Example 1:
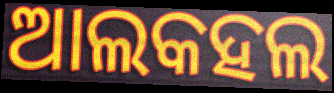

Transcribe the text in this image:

ଆଲକହଲ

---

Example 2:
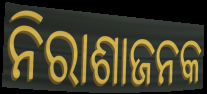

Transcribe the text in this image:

ନିରାଶାଜନକ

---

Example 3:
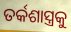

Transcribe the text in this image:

ତର୍କଶାସ୍ତ୍ରକୁ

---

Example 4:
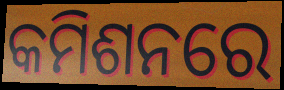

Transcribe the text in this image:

କମିଶନରେ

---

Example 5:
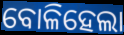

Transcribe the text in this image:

ବୋଳିହେଲା